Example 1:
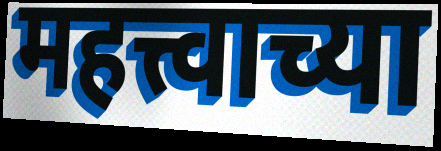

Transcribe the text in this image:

महत्त्वाच्या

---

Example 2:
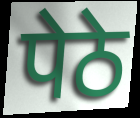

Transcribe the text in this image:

पेठे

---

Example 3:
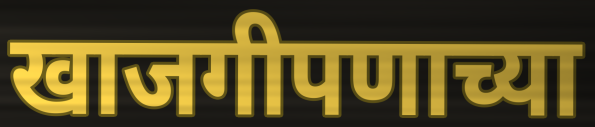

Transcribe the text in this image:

खाजगीपणाच्या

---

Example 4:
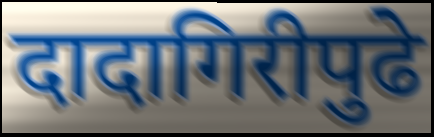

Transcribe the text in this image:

दादागिरीपुढे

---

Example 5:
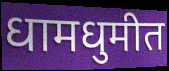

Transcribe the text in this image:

धामधुमीत